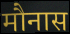
मौनास